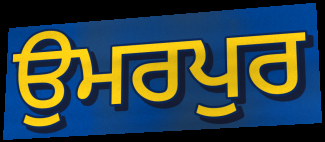
ਉਮਰਪੁਰ